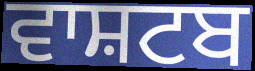
ਵਾਸ਼ਟਬ